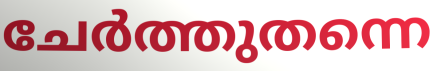
ചേർത്തുതന്നെ